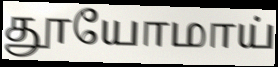
தூயோமாய்